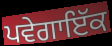
ਪਵੇਗਾਇੱਕ